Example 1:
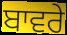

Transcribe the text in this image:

ਬਾਵਰੇ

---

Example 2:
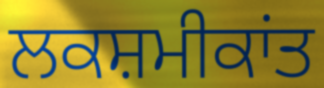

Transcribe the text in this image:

ਲਕਸ਼ਮੀਕਾਂਤ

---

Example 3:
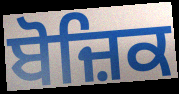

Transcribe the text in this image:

ਬੋਜ਼ਿਕ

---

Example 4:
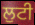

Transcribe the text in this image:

ਲੁਟੀ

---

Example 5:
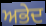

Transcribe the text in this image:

ਅਭੇਦ